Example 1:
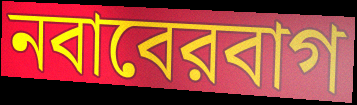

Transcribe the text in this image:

নবাবেরবাগ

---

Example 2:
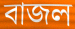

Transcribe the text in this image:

বাজল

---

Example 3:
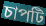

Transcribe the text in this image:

চাপটি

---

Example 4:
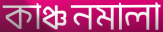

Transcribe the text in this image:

কাঞ্চনমালা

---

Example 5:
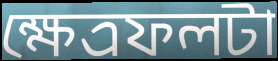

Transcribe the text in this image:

ক্ষেত্রফলটা